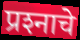
प्रश्‍नाचे